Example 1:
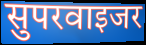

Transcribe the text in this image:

सुपरवाइजर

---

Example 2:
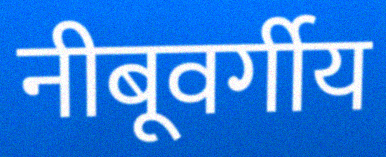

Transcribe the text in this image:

नीबूवर्गीय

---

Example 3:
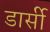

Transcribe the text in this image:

डार्सी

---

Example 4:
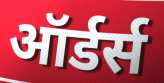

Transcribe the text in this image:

ऑर्डर्स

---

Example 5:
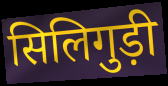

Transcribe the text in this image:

सिलिगुड़ी